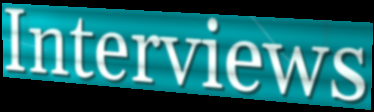
Interviews